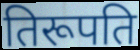
तिरूपति